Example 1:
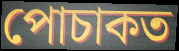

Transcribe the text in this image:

পোচাকত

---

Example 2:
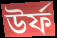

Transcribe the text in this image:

উৰ্ফ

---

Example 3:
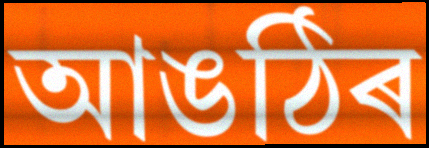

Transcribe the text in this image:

আঙঠিৰ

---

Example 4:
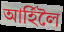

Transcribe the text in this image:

আৰ্হিলৈ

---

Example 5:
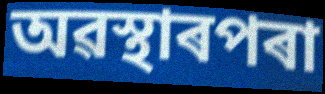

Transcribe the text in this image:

অৱস্থাৰপৰা